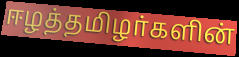
ஈழத்தமிழர்களின்